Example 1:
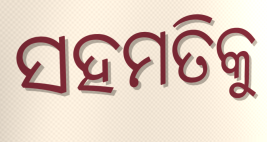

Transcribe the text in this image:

ସହମତିକୁ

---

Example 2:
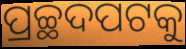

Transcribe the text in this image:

ପ୍ରଚ୍ଛଦପଟକୁ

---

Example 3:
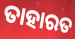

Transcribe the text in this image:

ତାହାରତ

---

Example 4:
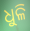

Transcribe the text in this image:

ଧୁଳି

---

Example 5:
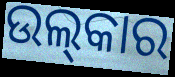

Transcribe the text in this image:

ଉଲ୍‍କାର